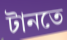
টানতে